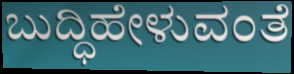
ಬುದ್ಧಿಹೇಳುವಂತೆ